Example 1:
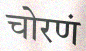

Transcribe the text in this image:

चोरणं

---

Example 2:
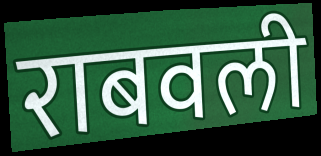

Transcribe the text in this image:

राबवली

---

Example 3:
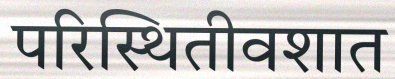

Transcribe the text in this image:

परिस्थितीवशात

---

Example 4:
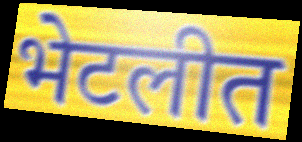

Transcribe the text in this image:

भेटलीत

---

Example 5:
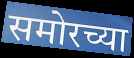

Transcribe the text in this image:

समोरच्या